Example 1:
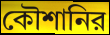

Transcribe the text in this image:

কৌশানির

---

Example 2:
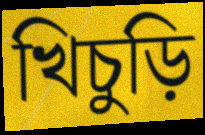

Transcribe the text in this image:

খিচুড়ি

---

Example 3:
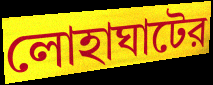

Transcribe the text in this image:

লোহাঘাটের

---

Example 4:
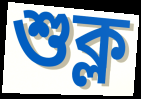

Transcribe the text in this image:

শুক্ল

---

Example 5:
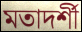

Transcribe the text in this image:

মতাদর্শী